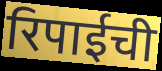
रिपाईची